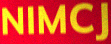
NIMCJ